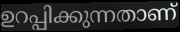
ഉറപ്പിക്കുന്നതാണ്